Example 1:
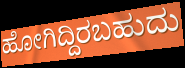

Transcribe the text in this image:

ಹೋಗಿದ್ದಿರಬಹುದು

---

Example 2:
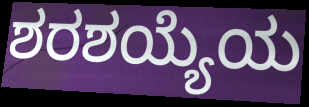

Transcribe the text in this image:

ಶರಶಯ್ಯೆಯ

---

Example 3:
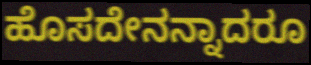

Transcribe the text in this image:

ಹೊಸದೇನನ್ನಾದರೂ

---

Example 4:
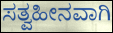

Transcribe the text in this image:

ಸತ್ವಹೀನವಾಗಿ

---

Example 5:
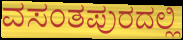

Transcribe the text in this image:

ವಸಂತಪುರದಲ್ಲಿ